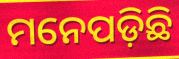
ମନେପଡ଼ିଛି